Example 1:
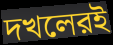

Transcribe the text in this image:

দখলেরই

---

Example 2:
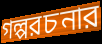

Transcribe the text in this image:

গল্পরচনার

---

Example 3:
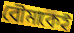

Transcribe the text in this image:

বৌমাকেই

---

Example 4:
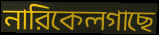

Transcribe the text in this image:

নারিকেলগাছে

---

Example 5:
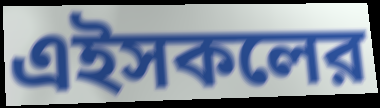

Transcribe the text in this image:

এইসকলের